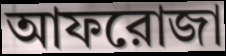
আফরোজা